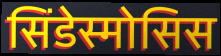
सिंडेस्मोसिस